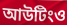
আউটিংও